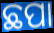
ଛପା